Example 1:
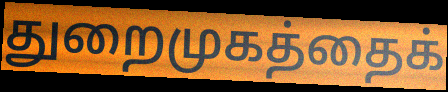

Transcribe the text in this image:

துறைமுகத்தைக்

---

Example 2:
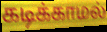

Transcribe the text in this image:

கடிக்காமல்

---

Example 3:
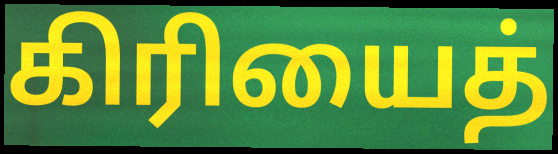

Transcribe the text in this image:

கிரியைத்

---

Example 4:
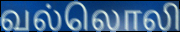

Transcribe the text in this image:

வல்லொலி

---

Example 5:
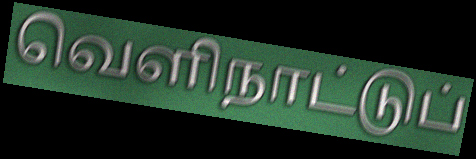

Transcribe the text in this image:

வெளிநாட்டுப்